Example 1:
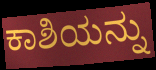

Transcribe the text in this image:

ಕಾಶಿಯನ್ನು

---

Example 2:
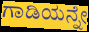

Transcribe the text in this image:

ಗಾಡಿಯನ್ನೇ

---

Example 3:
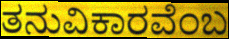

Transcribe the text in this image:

ತನುವಿಕಾರವೆಂಬ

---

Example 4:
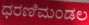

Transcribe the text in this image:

ಧರಣಿಮಂಡಲ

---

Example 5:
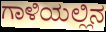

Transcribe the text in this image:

ಗಾಳಿಯಲ್ಲಿನ